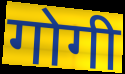
गोगी